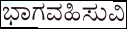
ಭಾಗವಹಿಸುವಿ